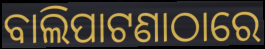
ବାଲିପାଟଣାଠାରେ